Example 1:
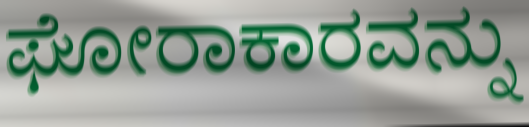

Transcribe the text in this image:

ಘೋರಾಕಾರವನ್ನು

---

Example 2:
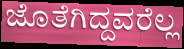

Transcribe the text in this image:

ಜೊತೆಗಿದ್ದವರೆಲ್ಲ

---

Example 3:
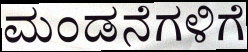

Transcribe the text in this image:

ಮಂಡನೆಗಳಿಗೆ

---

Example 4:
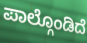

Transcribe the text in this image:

ಪಾಲ್ಗೊಂಡಿದೆ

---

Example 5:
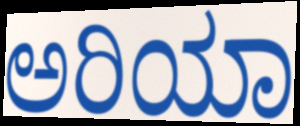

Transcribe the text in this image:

ಅರಿಯಾ